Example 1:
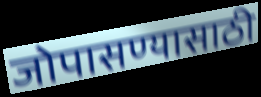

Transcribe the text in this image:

जोपासण्यासाठी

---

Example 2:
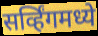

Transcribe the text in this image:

सर्व्हिंगमध्ये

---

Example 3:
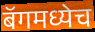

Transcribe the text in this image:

बॅगमध्येच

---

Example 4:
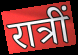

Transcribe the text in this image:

रात्रीं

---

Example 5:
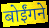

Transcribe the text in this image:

बोईंगने